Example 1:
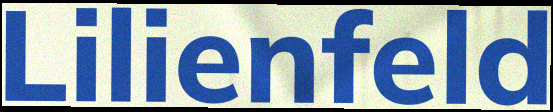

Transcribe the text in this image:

Lilienfeld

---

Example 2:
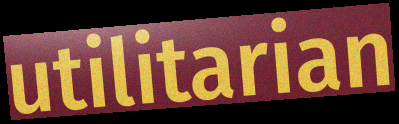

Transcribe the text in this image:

utilitarian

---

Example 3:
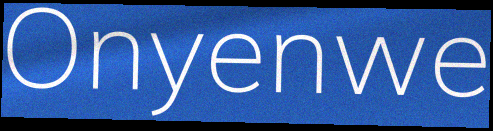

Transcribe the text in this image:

Onyenwe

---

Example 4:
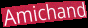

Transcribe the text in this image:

Amichand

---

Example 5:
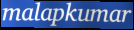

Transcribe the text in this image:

malapkumar